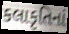
કલાકૃતિનાં